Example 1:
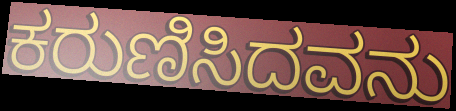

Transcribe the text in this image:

ಕರುಣಿಸಿದವನು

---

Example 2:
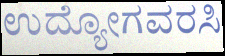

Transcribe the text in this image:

ಉದ್ಯೋಗವರಸಿ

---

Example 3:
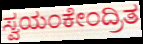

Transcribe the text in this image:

ಸ್ವಯಂಕೇಂದ್ರಿತ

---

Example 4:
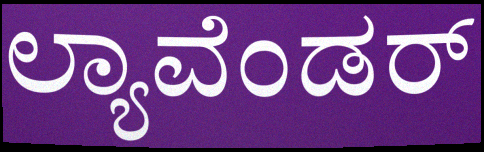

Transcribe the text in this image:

ಲ್ಯಾವೆಂಡರ್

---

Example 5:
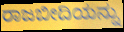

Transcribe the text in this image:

ರಾಜಬೀದಿಯನ್ನು